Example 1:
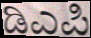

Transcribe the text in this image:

ಡಿಎಪಿ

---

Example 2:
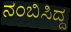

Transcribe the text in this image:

ನಂಬಿಸಿದ್ದ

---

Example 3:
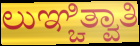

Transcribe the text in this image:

ಲುಞ್ಚಿತ್ವಾತಿ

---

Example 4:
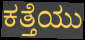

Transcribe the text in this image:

ಕತ್ತೆಯು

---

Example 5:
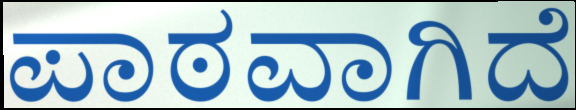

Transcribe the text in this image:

ಪಾಠವಾಗಿದೆ